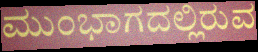
ಮುಂಭಾಗದಲ್ಲಿರುವ